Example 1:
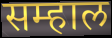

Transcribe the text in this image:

सम्हाल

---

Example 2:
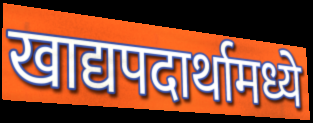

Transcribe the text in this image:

खाद्यपदार्थामध्ये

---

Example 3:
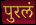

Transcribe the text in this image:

पुरलं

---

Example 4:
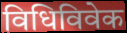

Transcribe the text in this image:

विधिविवेक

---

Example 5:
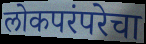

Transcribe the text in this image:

लोकपरंपरेचा